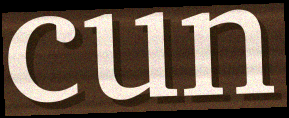
cun